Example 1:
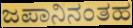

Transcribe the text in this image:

ಜಪಾನಿನಂತಹ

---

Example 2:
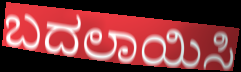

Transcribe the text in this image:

ಬದಲಾಯಿಸಿ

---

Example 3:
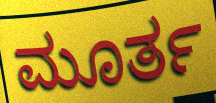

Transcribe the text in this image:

ಮೂರ್ತ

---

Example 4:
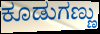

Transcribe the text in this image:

ಕೂಡುಗಣ್ಣು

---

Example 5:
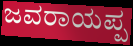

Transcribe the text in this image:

ಜವರಾಯಪ್ಪ